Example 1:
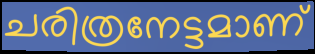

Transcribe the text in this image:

ചരിത്രനേട്ടമാണ്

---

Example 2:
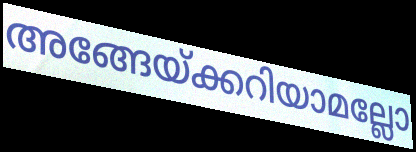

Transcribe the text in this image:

അങ്ങേയ്ക്കറിയാമല്ലോ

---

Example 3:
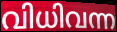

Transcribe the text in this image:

വിധിവന്ന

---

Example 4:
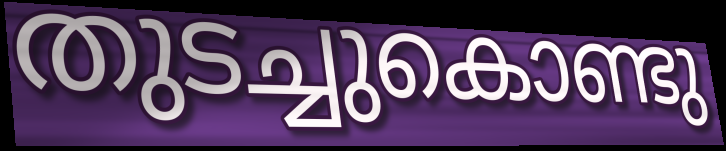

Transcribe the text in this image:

തുടച്ചുകൊണ്ടു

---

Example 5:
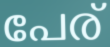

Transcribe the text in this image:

പേര്